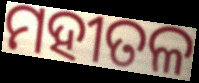
ମହୀତଳ